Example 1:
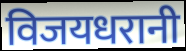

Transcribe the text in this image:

विजयधरानी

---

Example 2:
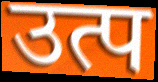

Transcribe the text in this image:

उत्प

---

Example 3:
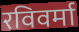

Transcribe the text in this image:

रविवर्मा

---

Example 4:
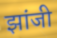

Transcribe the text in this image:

झांजी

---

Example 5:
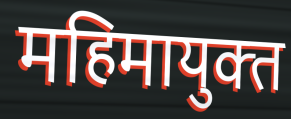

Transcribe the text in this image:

महिमायुक्‍त